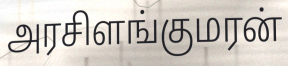
அரசிளங்குமரன்